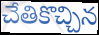
చేతికొచ్చిన